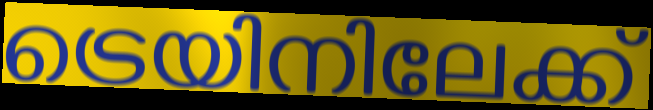
ട്രെയിനിലേക്ക്